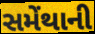
સમેંથાની